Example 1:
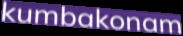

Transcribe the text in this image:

kumbakonam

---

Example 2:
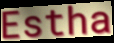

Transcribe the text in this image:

Estha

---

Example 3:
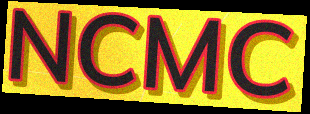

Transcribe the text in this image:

NCMC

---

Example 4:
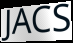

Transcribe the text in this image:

JACS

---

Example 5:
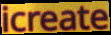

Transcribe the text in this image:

icreate